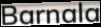
Barnala